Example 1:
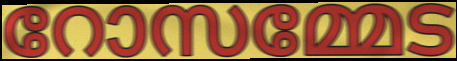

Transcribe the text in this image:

റോസമ്മേട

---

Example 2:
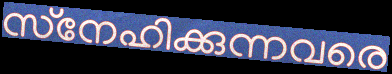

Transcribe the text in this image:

സ്‌നേഹിക്കുന്നവരെ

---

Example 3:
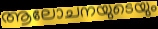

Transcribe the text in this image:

ആലോചനയുടെയും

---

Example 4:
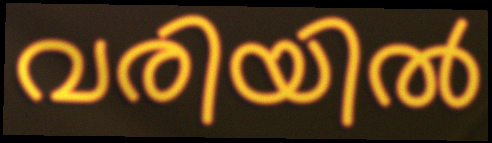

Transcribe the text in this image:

വരിയിൽ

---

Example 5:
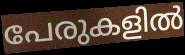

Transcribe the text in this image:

പേരുകളിൽ